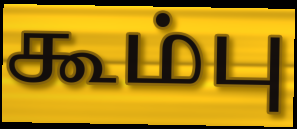
கூம்பு